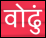
वोढुं